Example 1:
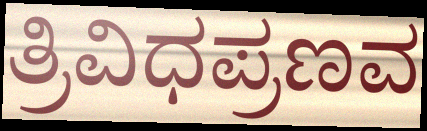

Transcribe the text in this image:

ತ್ರಿವಿಧಪ್ರಣವ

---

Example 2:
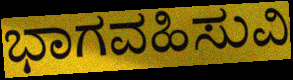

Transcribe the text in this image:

ಭಾಗವಹಿಸುವಿ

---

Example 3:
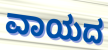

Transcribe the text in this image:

ವಾಯದ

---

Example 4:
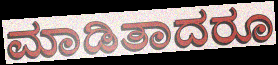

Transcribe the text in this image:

ಮಾಡಿತಾದರೂ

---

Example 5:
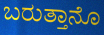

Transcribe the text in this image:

ಬರುತ್ತಾನೊ